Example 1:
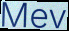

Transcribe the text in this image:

Mev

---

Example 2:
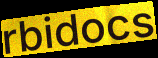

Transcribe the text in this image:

rbidocs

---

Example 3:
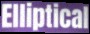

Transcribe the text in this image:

Elliptical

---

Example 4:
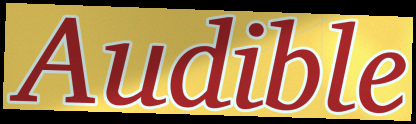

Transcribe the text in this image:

Audible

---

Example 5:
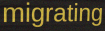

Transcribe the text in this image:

migrating